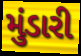
મુંડારી